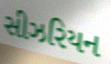
સીઝરિયન